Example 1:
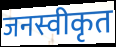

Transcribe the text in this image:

जनस्वीकृत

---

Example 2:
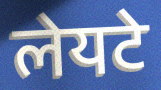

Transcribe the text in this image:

लेयटे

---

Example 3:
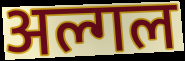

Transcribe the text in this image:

अल्गल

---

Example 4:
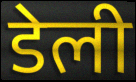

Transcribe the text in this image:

डेली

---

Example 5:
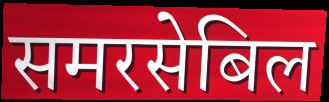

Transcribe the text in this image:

समरसेबिल